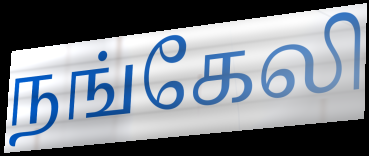
நங்கேலி